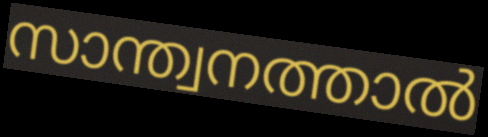
സാന്ത്വനത്താൽ